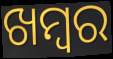
ଖମ୍ୱର